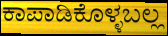
ಕಾಪಾಡಿಕೊಳ್ಳಬಲ್ಲ